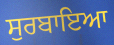
ਸੁਰਬਾਇਆ